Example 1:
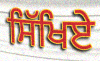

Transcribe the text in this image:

ਸਿੱਖਿਏ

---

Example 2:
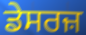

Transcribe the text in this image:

ਡੇਸਰਜ਼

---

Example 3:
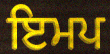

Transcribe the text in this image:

ਇਮਪ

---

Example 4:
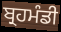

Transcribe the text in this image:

ਬ੍ਰਹਮੰਡੀ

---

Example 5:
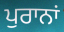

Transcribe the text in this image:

ਪੁਰਾਨਾਂ